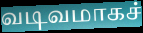
வடிவமாகச்